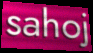
sahoj